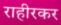
राहीरकर